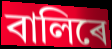
বালিৰে